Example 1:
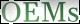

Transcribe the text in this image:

OEMs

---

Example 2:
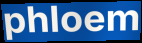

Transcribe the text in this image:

phloem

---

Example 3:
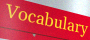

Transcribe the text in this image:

Vocabulary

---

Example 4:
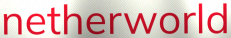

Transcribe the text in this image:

netherworld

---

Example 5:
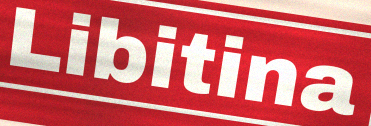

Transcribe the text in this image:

Libitina